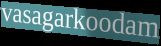
vasagarkoodam